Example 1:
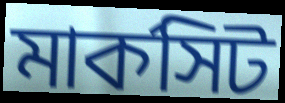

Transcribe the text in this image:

মার্কসিট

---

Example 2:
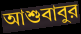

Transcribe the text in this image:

আশুবাবুর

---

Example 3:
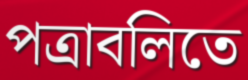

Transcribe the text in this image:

পত্রাবলিতে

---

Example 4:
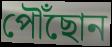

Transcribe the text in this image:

পৌঁছোন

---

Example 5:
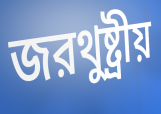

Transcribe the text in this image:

জরথুষ্ট্রীয়